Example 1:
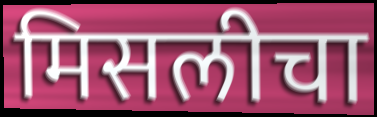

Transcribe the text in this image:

मिसलीचा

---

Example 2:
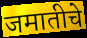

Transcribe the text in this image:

जमातीचे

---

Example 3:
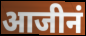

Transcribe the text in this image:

आजीनं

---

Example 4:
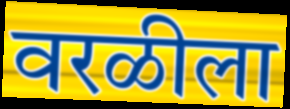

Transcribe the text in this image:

वरळीला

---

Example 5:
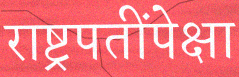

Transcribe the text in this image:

राष्ट्रपतींपेक्षा